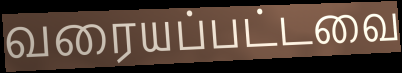
வரையப்பட்டவை